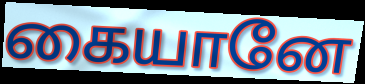
கையானே